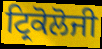
ਟ੍ਰਿਕੋਲੋਜੀ